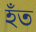
হঁত